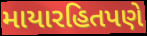
માયારહિતપણે